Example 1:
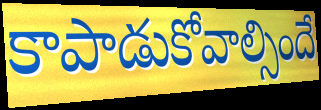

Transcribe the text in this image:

కాపాడుకోవాల్సిందే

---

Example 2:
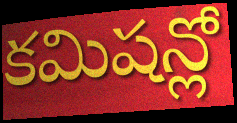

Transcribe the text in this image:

కమిషన్లో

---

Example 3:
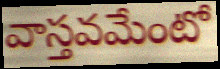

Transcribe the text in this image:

వాస్తవమేంటో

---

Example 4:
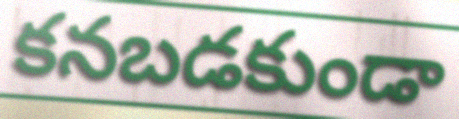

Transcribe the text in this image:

కనబడకుండా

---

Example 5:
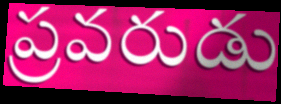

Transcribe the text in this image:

ప్రవరుడు